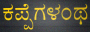
ಕಪ್ಪೆಗಳಂಥ